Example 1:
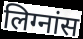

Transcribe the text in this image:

लिग्नांस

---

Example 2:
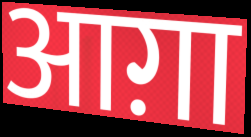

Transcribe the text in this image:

आग़ा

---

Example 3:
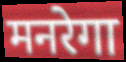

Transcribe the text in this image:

मनरेगा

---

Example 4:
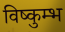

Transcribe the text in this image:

विष्कुम्भ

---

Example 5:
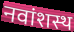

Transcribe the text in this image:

नवांशस्थ